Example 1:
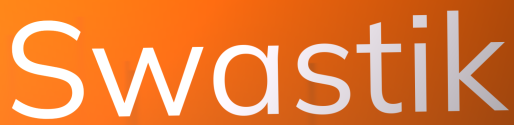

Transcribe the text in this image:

Swastik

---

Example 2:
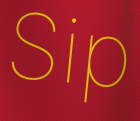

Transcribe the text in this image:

Sip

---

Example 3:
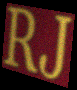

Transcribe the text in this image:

RJ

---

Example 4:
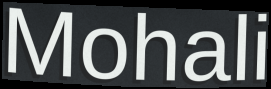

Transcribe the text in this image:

Mohali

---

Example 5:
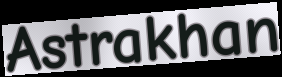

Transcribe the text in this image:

Astrakhan